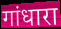
गांधारा